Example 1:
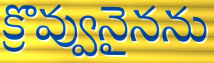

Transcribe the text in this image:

క్రొవ్వునైనను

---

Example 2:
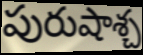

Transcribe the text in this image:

పురుషాశ్చ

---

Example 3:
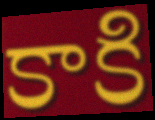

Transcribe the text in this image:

కాకి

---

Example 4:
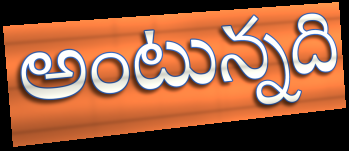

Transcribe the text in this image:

అంటున్నది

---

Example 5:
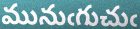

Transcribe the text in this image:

మునుఁగుచుఁ